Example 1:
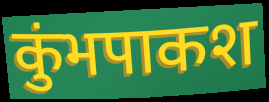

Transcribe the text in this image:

कुंभपाकश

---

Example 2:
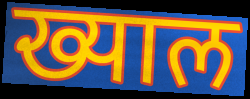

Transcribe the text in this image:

ख्याल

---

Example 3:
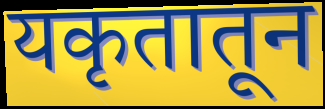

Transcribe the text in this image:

यकृतातून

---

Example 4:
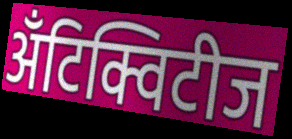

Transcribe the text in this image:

अँटिक्विटीज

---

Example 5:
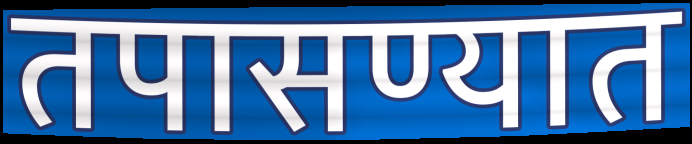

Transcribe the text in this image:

तपासण्यात